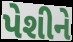
પેશીને